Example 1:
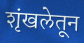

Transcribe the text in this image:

शृंखलेतून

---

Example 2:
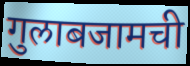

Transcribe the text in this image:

गुलाबजामची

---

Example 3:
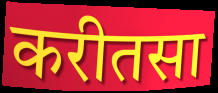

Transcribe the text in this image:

करीतसा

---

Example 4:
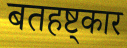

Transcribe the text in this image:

बतहष्ट्कार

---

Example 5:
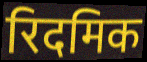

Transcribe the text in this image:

रिदमिक